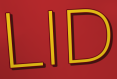
LID